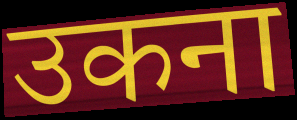
उकना